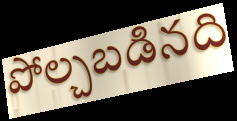
పోల్చబడినది